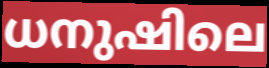
ധനുഷിലെ